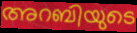
അറബിയുടെ